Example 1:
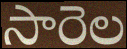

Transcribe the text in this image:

సారెల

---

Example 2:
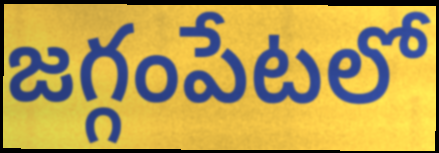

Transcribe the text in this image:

జగ్గంపేటలో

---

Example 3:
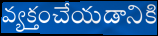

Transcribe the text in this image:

వ్యక్తంచేయడానికి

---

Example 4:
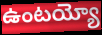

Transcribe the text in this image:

ఉంటయ్యో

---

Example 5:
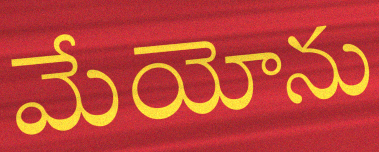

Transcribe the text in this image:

మేయోను